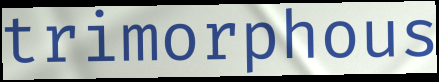
trimorphous